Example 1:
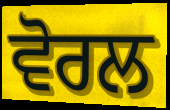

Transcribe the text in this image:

ਵੋਰਲ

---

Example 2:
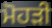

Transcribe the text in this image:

ਮੋਹੜੀ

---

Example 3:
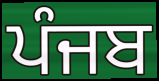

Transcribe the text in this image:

ਪੰਜਬ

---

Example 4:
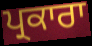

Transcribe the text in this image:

ਪ੍ਰਕਾਰਾ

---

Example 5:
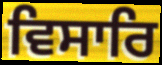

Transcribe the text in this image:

ਵਿਸਾਰਿ